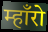
म्हाँरो